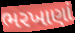
ભરખાણાં